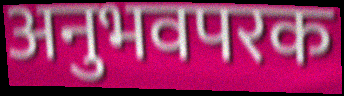
अनुभवपरक